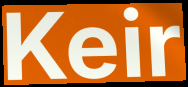
Keir